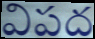
విపద